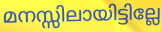
മനസ്സിലായിട്ടില്ലേ